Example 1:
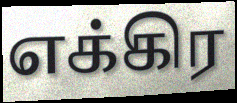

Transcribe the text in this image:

எக்கிர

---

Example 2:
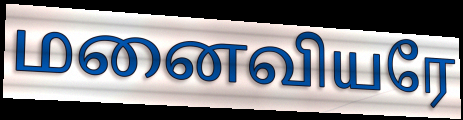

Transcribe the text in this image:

மனைவியரே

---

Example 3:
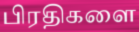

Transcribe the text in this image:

பிரதிகளை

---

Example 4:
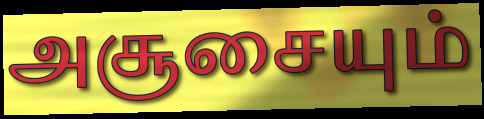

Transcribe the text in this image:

அசூசையும்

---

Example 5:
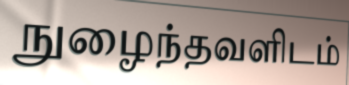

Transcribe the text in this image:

நுழைந்தவளிடம்